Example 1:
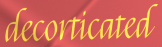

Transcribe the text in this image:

decorticated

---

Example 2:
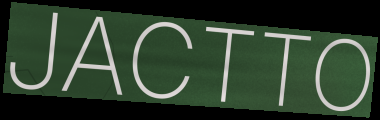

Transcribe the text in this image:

JACTTO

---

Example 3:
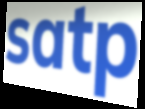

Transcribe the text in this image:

satp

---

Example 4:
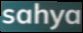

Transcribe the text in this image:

sahya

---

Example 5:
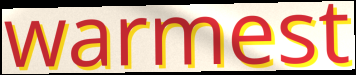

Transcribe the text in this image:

warmest